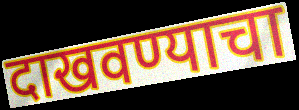
दाखवण्याचा